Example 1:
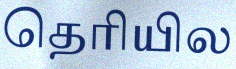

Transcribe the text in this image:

தெரியில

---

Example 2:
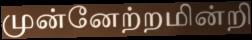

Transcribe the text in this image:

முன்னேற்றமின்றி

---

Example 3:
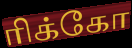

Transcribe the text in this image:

ரிக்கோ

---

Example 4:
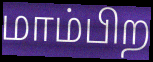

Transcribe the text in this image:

மாம்பிற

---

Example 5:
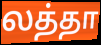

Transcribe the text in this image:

லத்தா